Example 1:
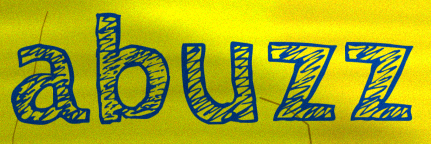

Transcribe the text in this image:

abuzz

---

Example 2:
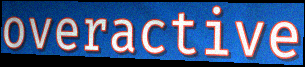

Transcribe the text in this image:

overactive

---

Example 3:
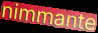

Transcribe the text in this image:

nimmante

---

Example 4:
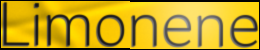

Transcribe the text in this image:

Limonene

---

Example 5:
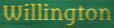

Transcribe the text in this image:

Willington